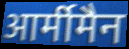
आर्मीमैन